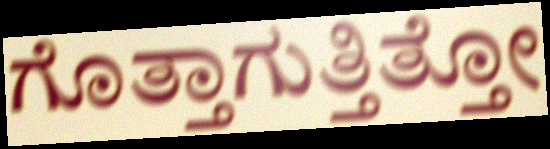
ಗೊತ್ತಾಗುತ್ತಿತ್ತೋ